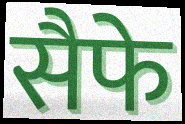
सैफे